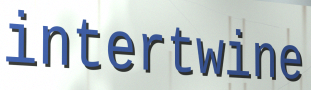
intertwine